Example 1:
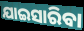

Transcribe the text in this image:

ଯାଇସାରିବା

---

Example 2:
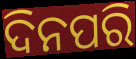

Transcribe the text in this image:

ଦିନପରି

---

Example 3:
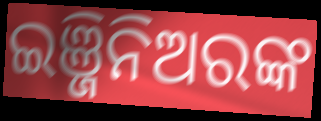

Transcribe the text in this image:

ଇଞ୍ଜିନିଅରଙ୍କ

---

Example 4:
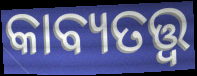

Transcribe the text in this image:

କାବ୍ୟତତ୍ତ୍ୱ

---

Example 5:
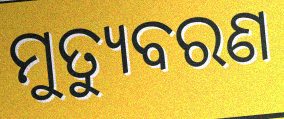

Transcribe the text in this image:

ମୁତ୍ୟୁବରଣ